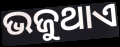
ଭଜୁଥାଏ